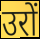
उरों